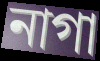
নাগা